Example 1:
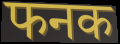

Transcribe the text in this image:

फनक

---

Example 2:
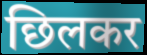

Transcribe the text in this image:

छिलकर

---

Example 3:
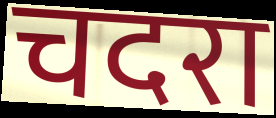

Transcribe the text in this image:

चदरा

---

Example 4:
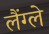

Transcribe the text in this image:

लैंग्ले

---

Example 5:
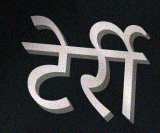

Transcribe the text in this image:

टेर्री